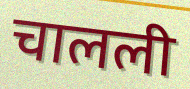
चालली